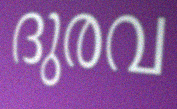
ദുരവ